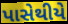
પાસેથીયે